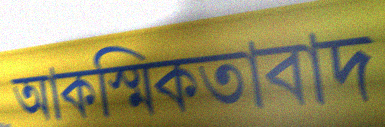
আকস্মিকতাবাদ